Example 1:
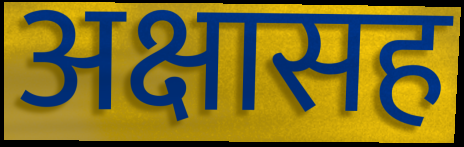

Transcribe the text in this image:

अक्षासह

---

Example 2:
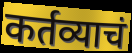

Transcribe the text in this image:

कर्तव्याचं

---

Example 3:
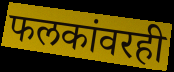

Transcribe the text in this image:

फलकांवरही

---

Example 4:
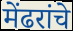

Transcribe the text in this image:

मेंढरांचे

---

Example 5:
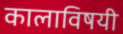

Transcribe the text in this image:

कालाविषयी